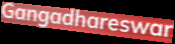
Gangadhareswar